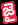
జై